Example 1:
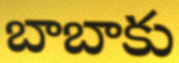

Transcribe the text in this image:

బాబాకు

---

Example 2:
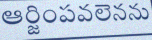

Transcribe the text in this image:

ఆర్జింపవలెనను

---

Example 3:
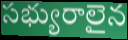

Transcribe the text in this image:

సభ్యురాలైన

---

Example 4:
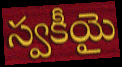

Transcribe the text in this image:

స్వకీయై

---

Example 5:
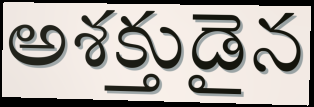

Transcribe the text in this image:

అశక్తుడైన